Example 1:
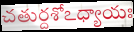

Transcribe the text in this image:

చతుర్దశోఽధ్యాయః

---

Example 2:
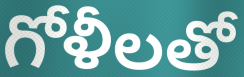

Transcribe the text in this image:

గోళీలతో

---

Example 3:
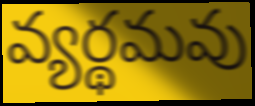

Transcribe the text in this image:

వ్యర్థమవు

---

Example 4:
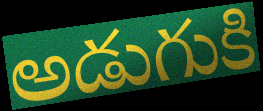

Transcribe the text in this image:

అడుగుకి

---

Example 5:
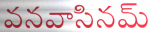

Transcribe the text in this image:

వనవాసినమ్